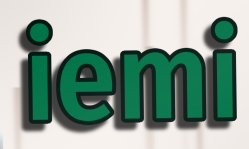
iemi